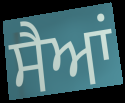
ਸੈਆਂ